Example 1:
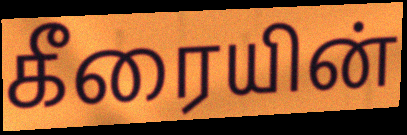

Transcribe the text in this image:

கீரையின்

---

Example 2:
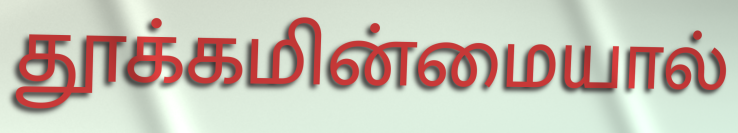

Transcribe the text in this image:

தூக்கமின்மையால்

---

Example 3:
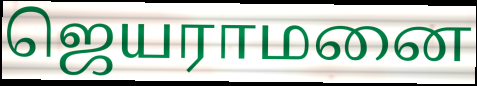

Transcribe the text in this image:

ஜெயராமனை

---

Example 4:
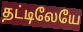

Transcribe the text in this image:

தட்டிலேயே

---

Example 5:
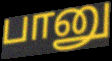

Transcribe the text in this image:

பானு